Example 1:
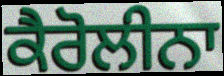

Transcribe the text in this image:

ਕੈਰੋਲੀਨਾ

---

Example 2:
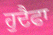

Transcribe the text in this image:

ਹੁਦੈਫਾ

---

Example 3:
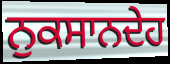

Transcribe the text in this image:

ਨੁਕਸਾਨਦੇਹ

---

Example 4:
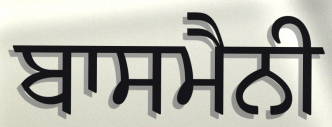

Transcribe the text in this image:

ਬਾਸਮੈਨੀ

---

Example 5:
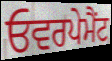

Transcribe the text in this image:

ਓਵਰਪੇਮੈਂਟ